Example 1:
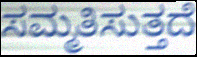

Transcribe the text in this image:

ಸಮ್ಮತಿಸುತ್ತದೆ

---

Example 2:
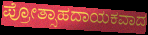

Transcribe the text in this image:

ಪ್ರೋತ್ಸಾಹದಾಯಕವಾದ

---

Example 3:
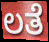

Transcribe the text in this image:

ಲತೆ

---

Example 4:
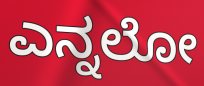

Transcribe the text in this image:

ಎನ್ನಲೋ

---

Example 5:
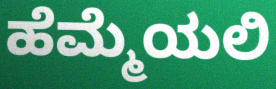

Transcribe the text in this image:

ಹೆಮ್ಮೆಯಲಿ